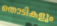
തൊടികളും